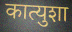
कात्युशा